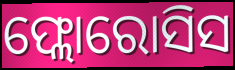
ଫ୍ଲୋରୋସିସ